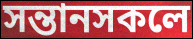
সন্তানসকলে